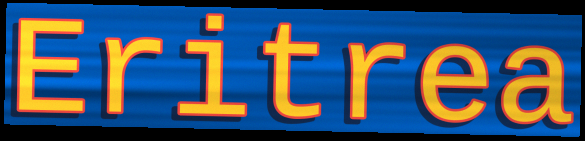
Eritrea